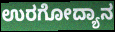
ಉರಗೋದ್ಯಾನ